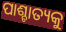
ପାଶ୍ଚାତ୍ୟକୁ